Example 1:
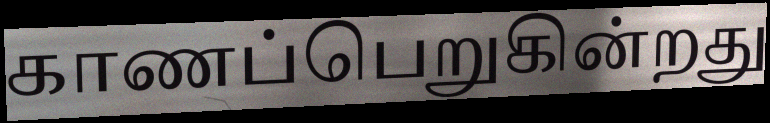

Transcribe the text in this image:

காணப்பெறுகின்றது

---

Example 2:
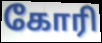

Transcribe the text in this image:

கோரி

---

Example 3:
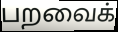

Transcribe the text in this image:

பறவைக்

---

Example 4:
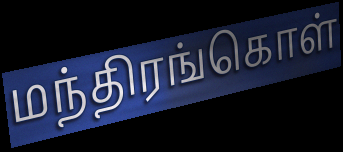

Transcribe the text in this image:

மந்திரங்கொள்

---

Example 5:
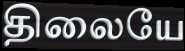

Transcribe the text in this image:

திலையே